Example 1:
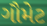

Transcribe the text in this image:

ગૌમેટ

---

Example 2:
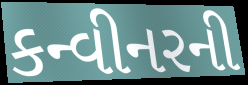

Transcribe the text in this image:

કન્વીનરની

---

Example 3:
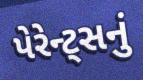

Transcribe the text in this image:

પેરેન્ટ્સનું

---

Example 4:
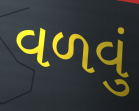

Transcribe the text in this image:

વળવું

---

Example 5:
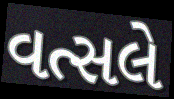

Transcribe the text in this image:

વત્સલે